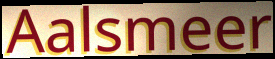
Aalsmeer